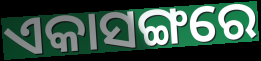
ଏକାସଙ୍ଗରେ